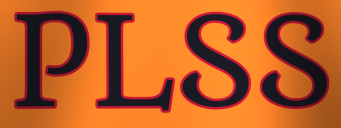
PLSS